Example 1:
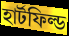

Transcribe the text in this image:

হার্টফিল্ড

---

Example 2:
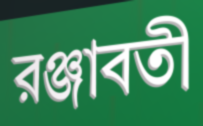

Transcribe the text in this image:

রঞ্জাবতী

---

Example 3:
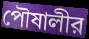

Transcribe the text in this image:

পৌষালীর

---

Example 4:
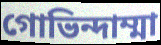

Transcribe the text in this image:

গোভিন্দাম্মা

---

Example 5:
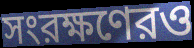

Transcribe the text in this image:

সংরক্ষণেরও